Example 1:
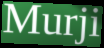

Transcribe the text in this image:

Murji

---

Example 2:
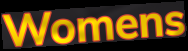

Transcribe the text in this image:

Womens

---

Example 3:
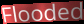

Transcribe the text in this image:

Flooded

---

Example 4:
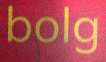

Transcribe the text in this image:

bolg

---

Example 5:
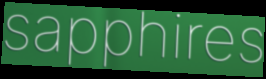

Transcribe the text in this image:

sapphires